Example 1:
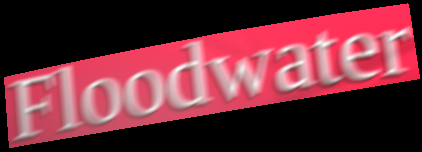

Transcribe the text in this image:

Floodwater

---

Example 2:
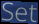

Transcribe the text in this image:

Set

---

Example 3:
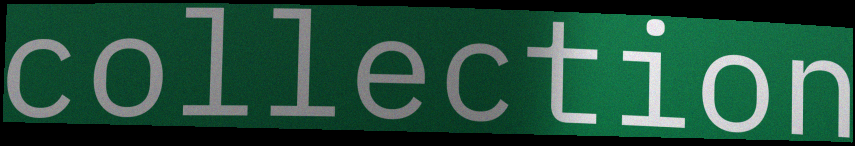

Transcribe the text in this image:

collection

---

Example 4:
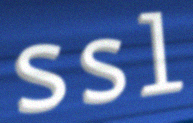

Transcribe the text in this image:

ssl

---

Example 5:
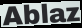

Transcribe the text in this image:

Ablaz